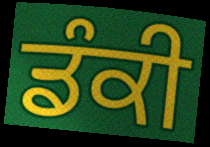
ਡੰਕੀ